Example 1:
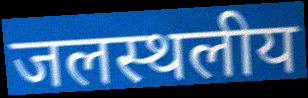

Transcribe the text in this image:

जलस्थलीय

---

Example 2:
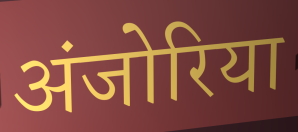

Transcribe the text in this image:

अंजोरिया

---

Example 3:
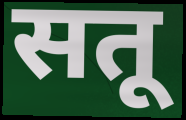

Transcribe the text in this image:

सतू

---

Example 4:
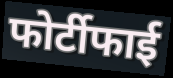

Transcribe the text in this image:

फोर्टीफाई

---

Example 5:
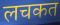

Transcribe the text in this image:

लचकत